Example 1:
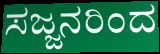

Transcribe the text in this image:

ಸಜ್ಜನರಿಂದ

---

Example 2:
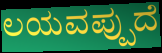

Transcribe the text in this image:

ಲಯವಪ್ಪುದೆ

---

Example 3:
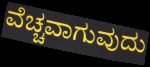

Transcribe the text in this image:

ವೆಚ್ಚವಾಗುವುದು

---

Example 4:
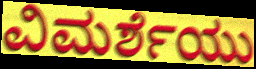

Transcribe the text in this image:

ವಿಮರ್ಶೆಯು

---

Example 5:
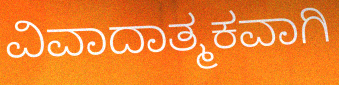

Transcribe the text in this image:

ವಿವಾದಾತ್ಮಕವಾಗಿ